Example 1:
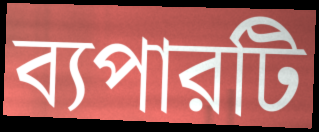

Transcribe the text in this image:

ব্যপারটি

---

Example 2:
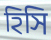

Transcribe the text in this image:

হিসি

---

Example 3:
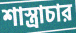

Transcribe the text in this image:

শাস্ত্রাচার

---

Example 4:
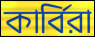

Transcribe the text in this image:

কার্বিরা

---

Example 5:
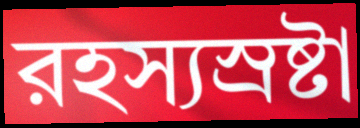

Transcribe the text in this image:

রহস্যস্রষ্টা